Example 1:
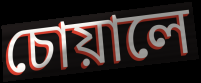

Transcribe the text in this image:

চোয়ালে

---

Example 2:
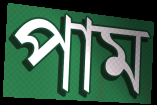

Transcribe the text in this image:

পাম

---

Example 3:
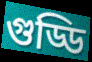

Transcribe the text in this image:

গুড্ডি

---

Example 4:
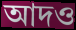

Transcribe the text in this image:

আদও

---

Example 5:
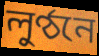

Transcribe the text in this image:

লুণ্ঠনে